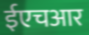
ईएचआर